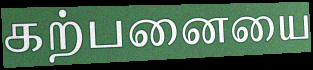
கற்பனையை